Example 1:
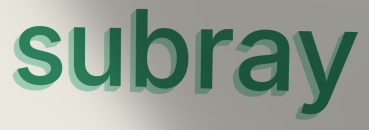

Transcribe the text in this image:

subray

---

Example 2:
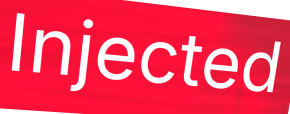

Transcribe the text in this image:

Injected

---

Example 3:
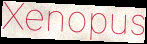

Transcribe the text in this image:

Xenopus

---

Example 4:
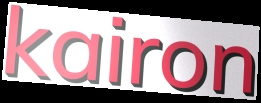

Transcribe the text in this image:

kairon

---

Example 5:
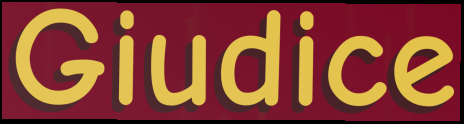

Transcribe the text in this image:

Giudice